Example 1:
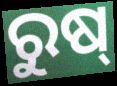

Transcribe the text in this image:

ରୁଷ୍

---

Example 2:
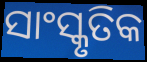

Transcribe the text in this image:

ସାଂସ୍କୃତିକ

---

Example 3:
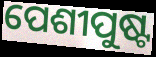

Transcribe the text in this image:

ପେଶୀପୁଷ୍ଟ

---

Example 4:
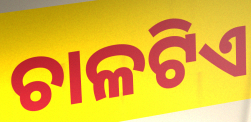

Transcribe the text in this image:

ଚାଳଟିଏ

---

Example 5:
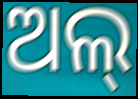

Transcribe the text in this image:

ଅଲ୍